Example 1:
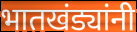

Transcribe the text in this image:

भातखंड्यांनी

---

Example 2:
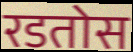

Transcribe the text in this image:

रडतोस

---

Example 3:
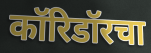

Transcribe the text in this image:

कॉरिडॉरचा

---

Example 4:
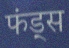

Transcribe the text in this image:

फंड्‌स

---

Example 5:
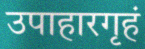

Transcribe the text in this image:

उपाहारगृहं